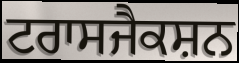
ਟਰਾਸਜੈਕਸ਼ਨ